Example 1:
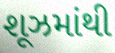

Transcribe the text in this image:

શૂઝમાંથી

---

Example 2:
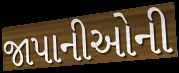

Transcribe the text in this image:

જાપાનીઓની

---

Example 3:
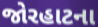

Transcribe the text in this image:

જોરહાટના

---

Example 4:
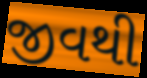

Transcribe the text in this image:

જીવથી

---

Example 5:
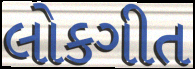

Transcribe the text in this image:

લોકગીત